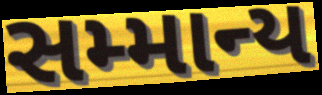
સમ્માન્ય